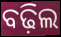
ବଢ଼ିଲ